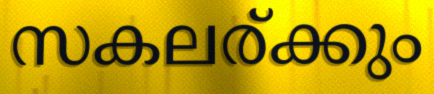
സകലര്ക്കും